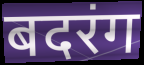
बदरंग